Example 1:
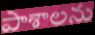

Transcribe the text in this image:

పాశాలను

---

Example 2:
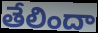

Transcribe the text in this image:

తేలిందా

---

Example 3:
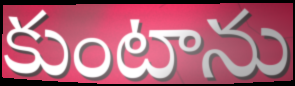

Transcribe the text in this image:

కుంటాను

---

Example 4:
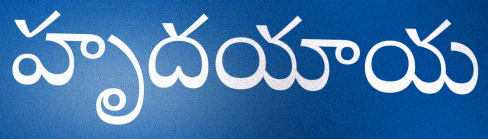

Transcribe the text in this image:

హృదయాయ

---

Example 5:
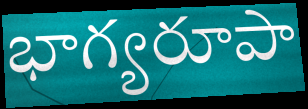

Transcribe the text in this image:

భాగ్యరూపా